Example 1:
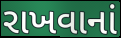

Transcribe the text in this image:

રાખવાનાં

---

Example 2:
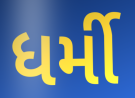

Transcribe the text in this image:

ધર્મી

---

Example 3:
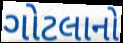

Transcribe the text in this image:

ગોટલાનો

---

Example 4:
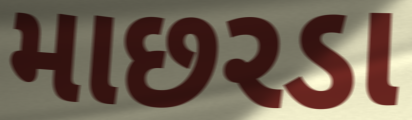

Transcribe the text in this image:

માછરડા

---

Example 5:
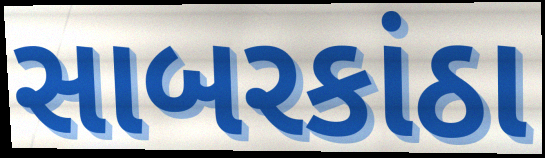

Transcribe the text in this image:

સાબરકાંઠા